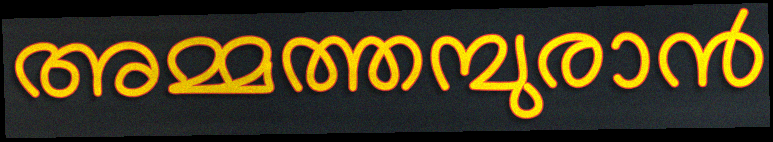
അമ്മത്തമ്പുരാൻ